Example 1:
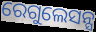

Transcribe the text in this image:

ରେଗୁଲେସନ୍ସ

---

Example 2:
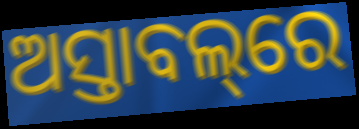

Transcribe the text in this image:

ଅସ୍ତାବଲ୍‌ରେ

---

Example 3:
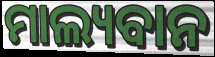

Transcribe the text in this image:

ମାଲ୍ୟବାନ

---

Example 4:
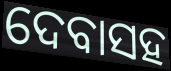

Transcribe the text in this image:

ଦେବାସହ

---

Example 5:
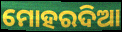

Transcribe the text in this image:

ମୋହରଦିଆ